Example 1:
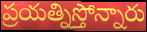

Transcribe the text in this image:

ప్రయత్నిస్తోన్నారు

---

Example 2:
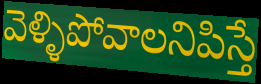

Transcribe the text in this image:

వెళ్ళిపోవాలనిపిస్తే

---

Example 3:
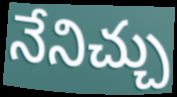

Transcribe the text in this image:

నేనిచ్చు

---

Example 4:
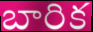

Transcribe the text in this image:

బారిక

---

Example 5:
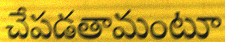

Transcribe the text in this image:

చేపడతామంటూ